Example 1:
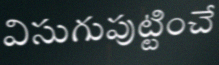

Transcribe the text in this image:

విసుగుపుట్టించే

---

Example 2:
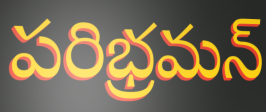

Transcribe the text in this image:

పరిభ్రమన్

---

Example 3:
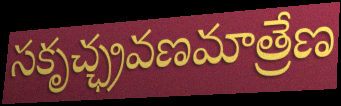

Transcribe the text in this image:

సకృచ్ఛ్రవణమాత్రేణ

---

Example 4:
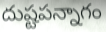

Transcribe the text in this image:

దుష్టపన్నాగం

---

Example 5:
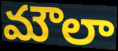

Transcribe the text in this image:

మౌలా